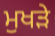
ਮੁਖੜੇ